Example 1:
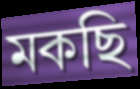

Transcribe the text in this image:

মকছি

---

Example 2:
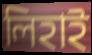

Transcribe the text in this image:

লিহাই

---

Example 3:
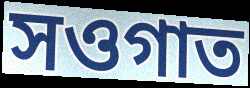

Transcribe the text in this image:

সওগাত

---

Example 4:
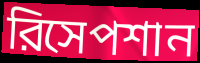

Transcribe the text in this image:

রিসেপশান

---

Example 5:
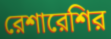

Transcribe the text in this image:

রেশারেশির